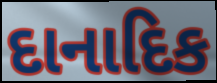
દાનાદિક